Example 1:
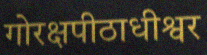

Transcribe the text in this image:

गोरक्षपीठाधीश्वर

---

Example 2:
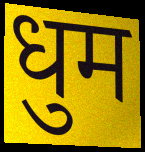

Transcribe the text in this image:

धुम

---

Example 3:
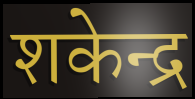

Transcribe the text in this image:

शकेन्द्र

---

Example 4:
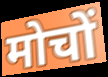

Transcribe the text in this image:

मोचों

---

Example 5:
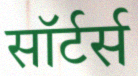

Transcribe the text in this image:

सॉर्टर्स